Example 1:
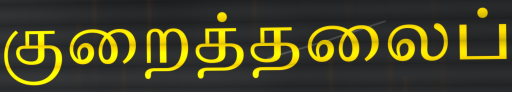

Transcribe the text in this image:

குறைத்தலைப்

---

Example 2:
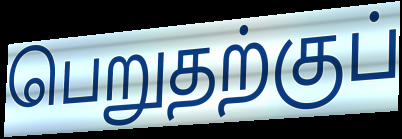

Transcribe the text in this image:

பெறுதற்குப்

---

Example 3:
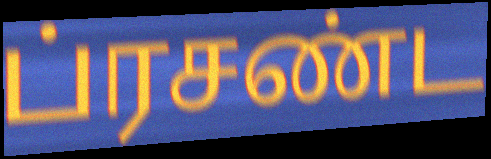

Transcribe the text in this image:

ப்ரசண்ட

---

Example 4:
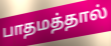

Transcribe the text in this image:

பாதமத்தால்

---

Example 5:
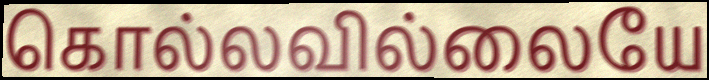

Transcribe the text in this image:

கொல்லவில்லையே